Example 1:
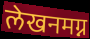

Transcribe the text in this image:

लेखनमग्न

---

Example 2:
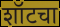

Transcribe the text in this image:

शॉटचा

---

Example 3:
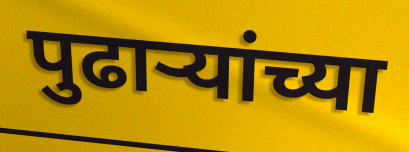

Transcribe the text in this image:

पुढार्‍यांच्या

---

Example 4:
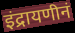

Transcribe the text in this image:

इंद्रायणीनं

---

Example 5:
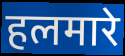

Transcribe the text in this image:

हलमारे